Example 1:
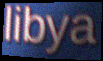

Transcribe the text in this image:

libya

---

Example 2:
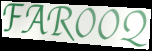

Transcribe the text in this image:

FAROOQ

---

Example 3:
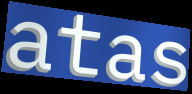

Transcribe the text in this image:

atas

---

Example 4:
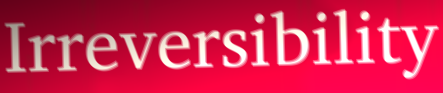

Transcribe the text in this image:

Irreversibility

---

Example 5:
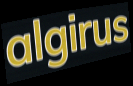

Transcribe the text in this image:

algirus